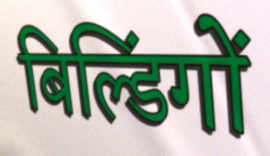
बिल्डिंगों